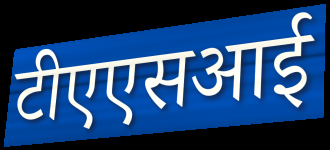
टीएएसआई